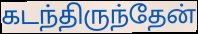
கடந்திருந்தேன்